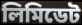
লিমিডেট